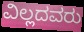
ವಿಲ್ಲದವರು